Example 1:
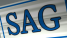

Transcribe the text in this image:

SAG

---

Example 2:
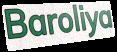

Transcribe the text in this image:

Baroliya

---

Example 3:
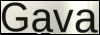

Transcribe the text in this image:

Gava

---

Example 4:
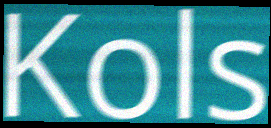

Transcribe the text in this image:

Kols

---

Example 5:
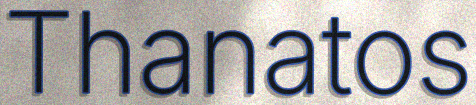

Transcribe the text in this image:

Thanatos